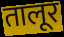
तालूर